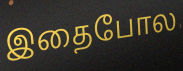
இதைபோல